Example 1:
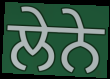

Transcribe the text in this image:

ਲੇਨੇ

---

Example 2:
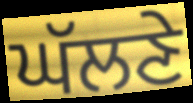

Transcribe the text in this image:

ਘੱਲਣੇ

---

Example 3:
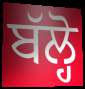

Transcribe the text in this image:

ਬੱਲ੍ਹੋ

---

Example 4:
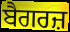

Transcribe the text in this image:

ਬੈਗਰਜ਼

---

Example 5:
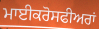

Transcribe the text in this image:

ਮਾਈਕਰੋਸਫੀਅਰਾਂ